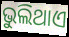
ଭୁଲିଥାଏ